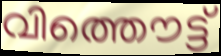
വിത്തൌട്ട്